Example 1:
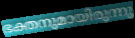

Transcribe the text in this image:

ഭക്തനുമായിരുന്നു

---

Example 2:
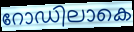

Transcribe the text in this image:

റോഡിലാകെ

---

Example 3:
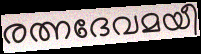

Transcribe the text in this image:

രത്നദേവമയീ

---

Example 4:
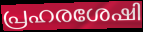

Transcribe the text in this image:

പ്രഹരശേഷി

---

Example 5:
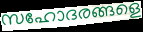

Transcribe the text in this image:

സഹോദരങ്ങളെ